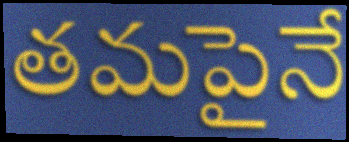
తమపైనే